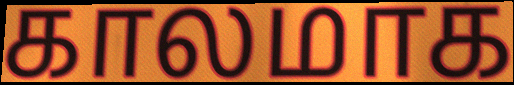
காலமாக